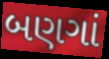
બણગાં